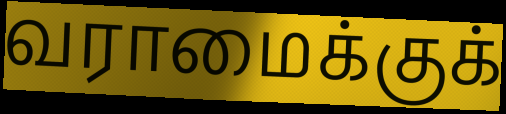
வராமைக்குக்